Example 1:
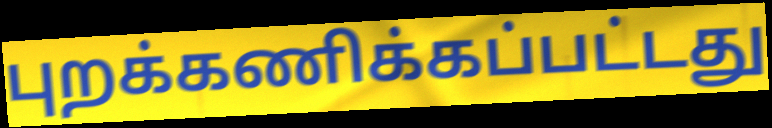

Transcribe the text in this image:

புறக்கணிக்கப்பட்டது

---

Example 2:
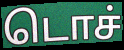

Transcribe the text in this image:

டொச்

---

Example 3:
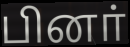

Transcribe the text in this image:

பினர்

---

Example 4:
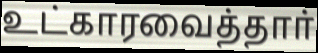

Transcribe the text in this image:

உட்காரவைத்தார்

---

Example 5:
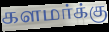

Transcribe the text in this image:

களமர்க்கு